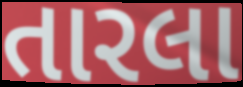
તારલા